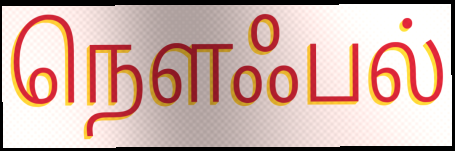
நௌஃபல்